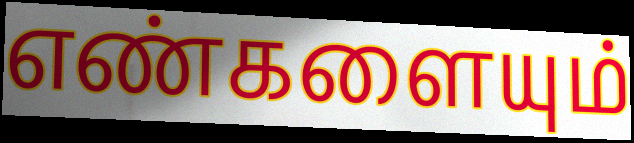
எண்களையும்